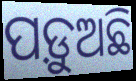
ପଡ଼ୁଅଛି